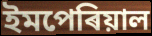
ইমপেৰিয়াল